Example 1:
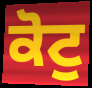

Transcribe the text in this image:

ਕੋਟੁ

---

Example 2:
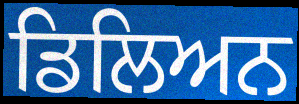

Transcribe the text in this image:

ਡਿਲਿਅਨ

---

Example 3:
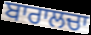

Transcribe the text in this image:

ਬਾਰਾਲਚਾ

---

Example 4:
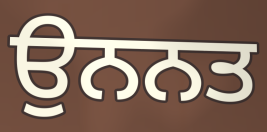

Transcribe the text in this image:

ਉਨਨਤ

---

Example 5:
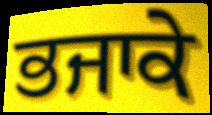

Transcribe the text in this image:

ਭਜਾਕੇ